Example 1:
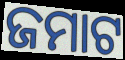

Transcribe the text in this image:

ଜମାଟ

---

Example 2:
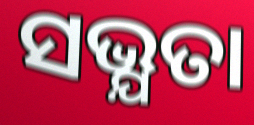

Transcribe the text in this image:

ସଭ୍ଯତା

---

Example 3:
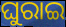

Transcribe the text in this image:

ଘୁରାଇ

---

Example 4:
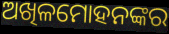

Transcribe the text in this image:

ଅଖିଳମୋହନଙ୍କର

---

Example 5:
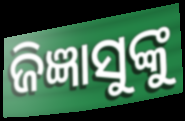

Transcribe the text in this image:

ଜିଜ୍ଞାସୁଙ୍କୁ